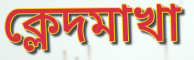
ক্লেদমাখা